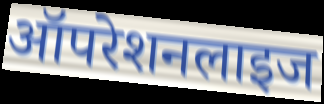
ऑपरेशनलाइज